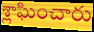
శ్లాఘించారు